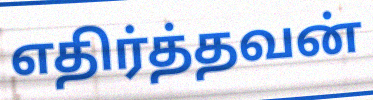
எதிர்த்தவன்